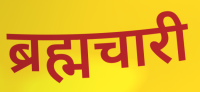
ब्रह्मचारी